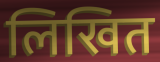
लिखित